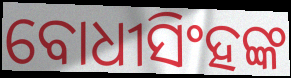
ବୋଧୀସିଂହଙ୍କ